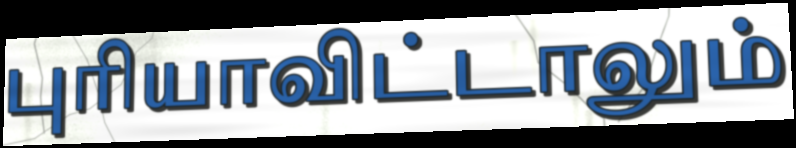
புரியாவிட்டாலும்